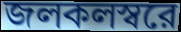
জলকলস্বরে